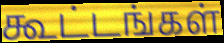
கூட்டங்கள்